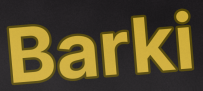
Barki